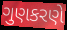
ગુણકરણે